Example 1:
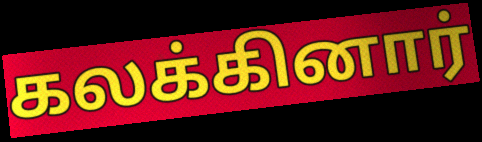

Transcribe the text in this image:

கலக்கினார்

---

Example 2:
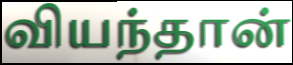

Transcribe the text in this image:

வியந்தான்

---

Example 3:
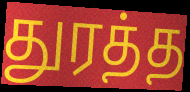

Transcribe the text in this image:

துரத்த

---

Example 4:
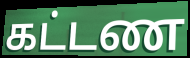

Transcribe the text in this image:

கட்டண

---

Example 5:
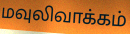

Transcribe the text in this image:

மவுலிவாக்கம்